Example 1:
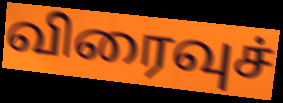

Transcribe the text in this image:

விரைவுச்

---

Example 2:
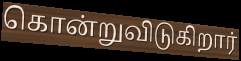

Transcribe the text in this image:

கொன்றுவிடுகிறார்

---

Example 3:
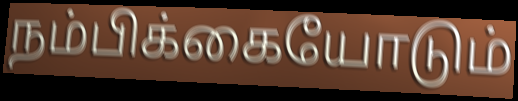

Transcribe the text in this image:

நம்பிக்கையோடும்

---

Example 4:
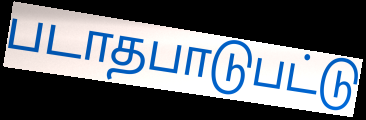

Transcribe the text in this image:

படாதபாடுபட்டு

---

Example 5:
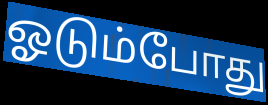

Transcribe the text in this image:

ஓடும்போது